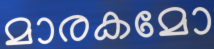
മാരകമോ